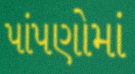
પાંપણોમાં